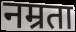
नम्रता